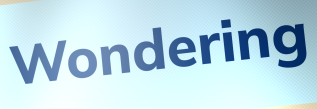
Wondering